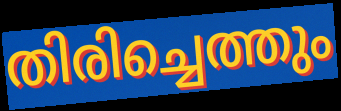
തിരിച്ചെത്തും